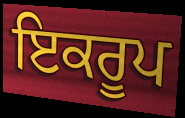
ਇਕਰੂਪ